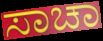
ಸಾಚಾ